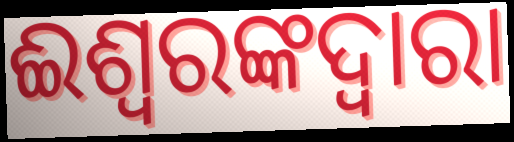
ଈଶ୍ୱରଙ୍କଦ୍ୱାରା